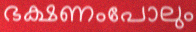
ഭക്ഷണംപോലും